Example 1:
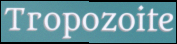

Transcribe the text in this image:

Tropozoite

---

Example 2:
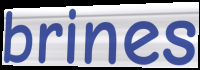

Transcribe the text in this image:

brines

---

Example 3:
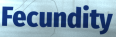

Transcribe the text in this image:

Fecundity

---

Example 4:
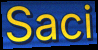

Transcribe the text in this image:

Saci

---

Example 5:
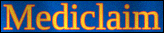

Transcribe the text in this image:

Mediclaim